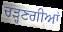
ਚੜ੍ਹਣਗੀਆਂ